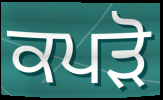
ਕਪੜੋ